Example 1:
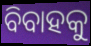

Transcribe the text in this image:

ବିବାହକୁ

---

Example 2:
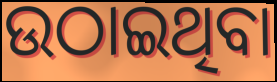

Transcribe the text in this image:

ଉଠାଇଥିବା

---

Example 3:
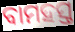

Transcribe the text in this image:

ବାମହସ୍ତ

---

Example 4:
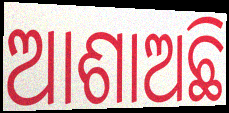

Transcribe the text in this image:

ଆଶାଅଛି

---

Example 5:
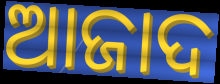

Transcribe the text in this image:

ଆଜାଦ